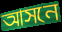
আসনে